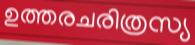
ഉത്തരചരിത്രസ്യ